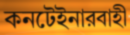
কনটেইনারবাহী